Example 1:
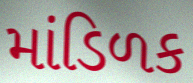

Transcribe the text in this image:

માંડિળક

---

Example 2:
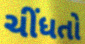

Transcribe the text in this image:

ચીંધતો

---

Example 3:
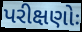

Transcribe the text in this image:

પરીક્ષણોઃ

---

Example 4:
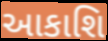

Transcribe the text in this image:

આકાશિ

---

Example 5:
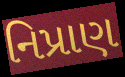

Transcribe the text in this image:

નિપ્રાણ